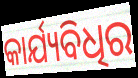
କାର୍ଯ୍ୟବିଧିର